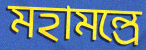
মহামন্ত্রে